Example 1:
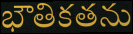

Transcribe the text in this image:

భౌతికతను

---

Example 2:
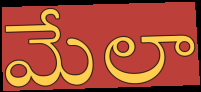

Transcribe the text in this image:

మేలా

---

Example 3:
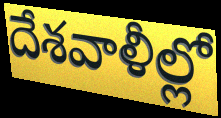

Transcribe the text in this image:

దేశవాళీల్లో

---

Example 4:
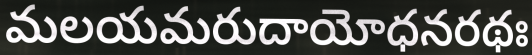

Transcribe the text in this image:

మలయమరుదాయోధనరథః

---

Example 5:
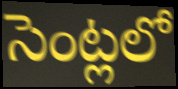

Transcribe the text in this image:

సెంట్లలో